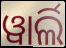
ୱାର୍ଲି